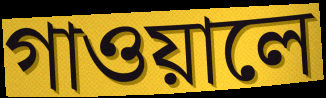
গাওয়ালে